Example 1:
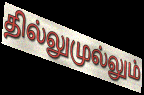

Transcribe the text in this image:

தில்லுமுல்லும்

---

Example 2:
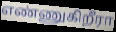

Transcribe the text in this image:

எண்ணுகிறீரா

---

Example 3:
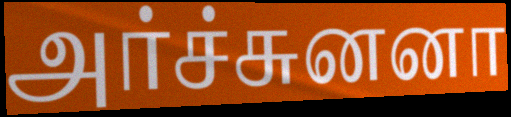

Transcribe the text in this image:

அர்ச்சுனனா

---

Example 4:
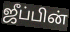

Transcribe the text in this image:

ஜீப்பின்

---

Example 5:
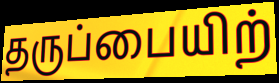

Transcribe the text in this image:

தருப்பையிற்